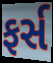
ફર્સ